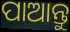
ପାଆନ୍ତୁ